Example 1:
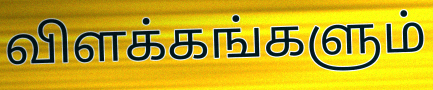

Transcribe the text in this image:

விளக்கங்களும்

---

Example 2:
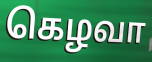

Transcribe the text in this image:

கெழவா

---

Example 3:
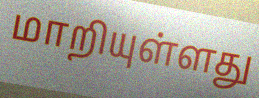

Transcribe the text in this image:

மாறியுள்ளது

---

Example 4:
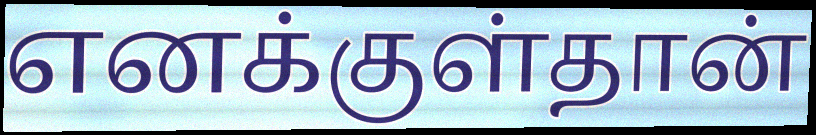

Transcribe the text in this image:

எனக்குள்தான்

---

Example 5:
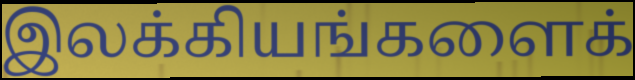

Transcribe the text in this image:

இலக்கியங்களைக்